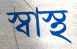
স্বাস্থ